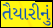
તૈયારીનું